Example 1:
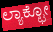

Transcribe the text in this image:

ಲ್ಯಾಕ್ಟೋ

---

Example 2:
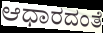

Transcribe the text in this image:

ಆಧಾರದಂತೆ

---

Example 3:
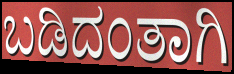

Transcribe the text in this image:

ಬಡಿದಂತಾಗಿ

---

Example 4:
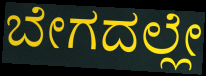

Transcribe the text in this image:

ಬೇಗದಲ್ಲೇ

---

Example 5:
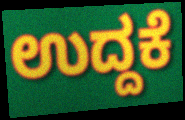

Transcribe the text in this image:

ಉದ್ದಕೆ